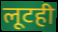
लूटही